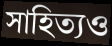
সাহিত্য়ও